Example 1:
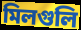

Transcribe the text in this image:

মিলগুলি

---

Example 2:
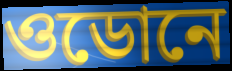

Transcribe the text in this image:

ওডোনে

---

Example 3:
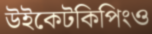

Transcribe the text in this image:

উইকেটকিপিংও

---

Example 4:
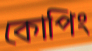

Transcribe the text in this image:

কোপিং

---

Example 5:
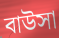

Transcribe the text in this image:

বাউসা